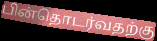
பின்தொடர்வதற்கு